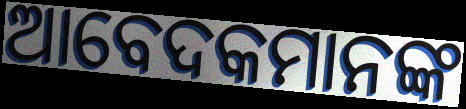
ଆବେଦକମାନଙ୍କ